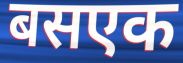
बसएक